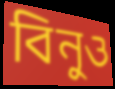
বিনুও